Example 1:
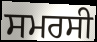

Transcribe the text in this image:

ਸਮਰਸੀ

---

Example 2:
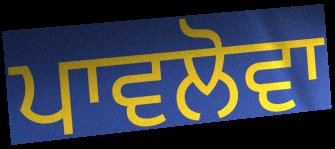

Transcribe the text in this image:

ਪਾਵਲੋਵਾ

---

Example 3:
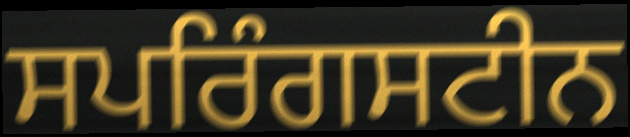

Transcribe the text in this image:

ਸਪਰਿੰਗਸਟੀਨ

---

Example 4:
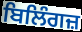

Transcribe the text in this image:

ਬਿਲਿੰਗਜ਼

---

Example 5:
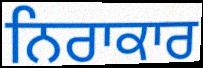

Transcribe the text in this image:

ਨਿਰਾਕਾਰ